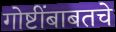
गोष्टींबाबतचे